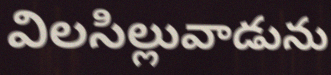
విలసిల్లువాడును